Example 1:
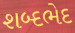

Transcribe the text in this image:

શબ્દભેદ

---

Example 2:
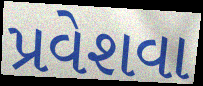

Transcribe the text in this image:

પ્રવેશવા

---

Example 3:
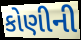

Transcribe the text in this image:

કોણીની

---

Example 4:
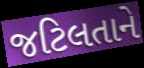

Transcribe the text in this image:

જટિલતાને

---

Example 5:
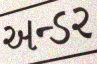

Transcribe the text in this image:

અન્ડર